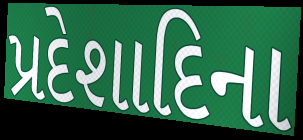
પ્રદેશાદિના